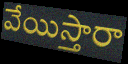
వేయిస్తారా